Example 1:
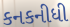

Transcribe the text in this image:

કનકનીધી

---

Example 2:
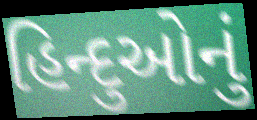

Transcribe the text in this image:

હિન્દુઓનું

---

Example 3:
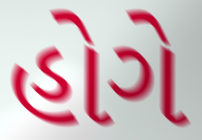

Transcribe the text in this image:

હોગે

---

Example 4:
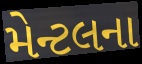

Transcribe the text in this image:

મેન્ટલના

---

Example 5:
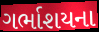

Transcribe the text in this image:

ગર્ભાશયના